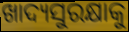
ଖାଦ୍ୟସୁରକ୍ଷାକୁ